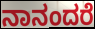
ನಾನಂದರೆ